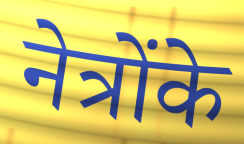
नेत्रोंके